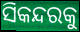
ସିକନ୍ଦରକୁ